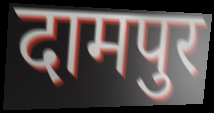
दामपुर